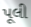
પૂલી